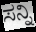
ಸನ್ನಿ